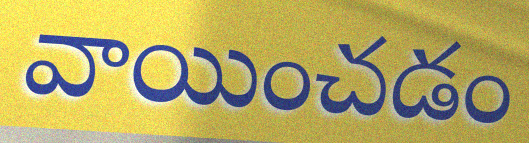
వాయించడం